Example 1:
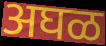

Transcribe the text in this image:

अघळ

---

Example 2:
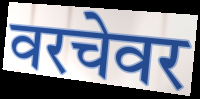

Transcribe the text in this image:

वरचेवर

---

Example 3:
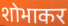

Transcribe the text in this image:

शोभाकर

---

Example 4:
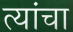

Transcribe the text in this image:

त्यांचा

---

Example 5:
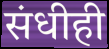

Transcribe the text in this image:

संधीही